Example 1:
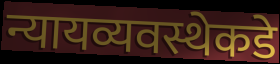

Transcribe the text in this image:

न्यायव्यवस्थेकडे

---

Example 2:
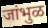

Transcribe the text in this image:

जांभुळ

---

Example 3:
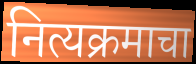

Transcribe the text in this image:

नित्यक्रमाचा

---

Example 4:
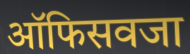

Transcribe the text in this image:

ऑफिसवजा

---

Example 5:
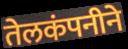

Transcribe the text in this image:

तेलकंपनीने